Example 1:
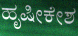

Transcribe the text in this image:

ಹೃಷೀಕೇಶ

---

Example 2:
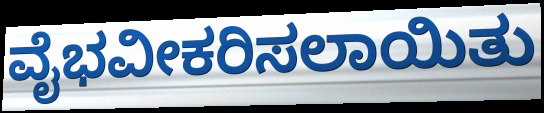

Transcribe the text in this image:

ವೈಭವೀಕರಿಸಲಾಯಿತು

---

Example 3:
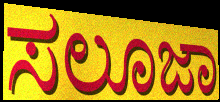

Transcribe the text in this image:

ಸಲೂಜಾ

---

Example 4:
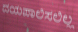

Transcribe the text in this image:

ದಯಪಾಲಿಸಲಿಲ್ಲ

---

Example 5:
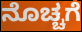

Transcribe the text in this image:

ನೊಚ್ಚಗೆ